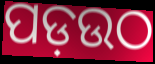
ପଡ଼ଉଠ